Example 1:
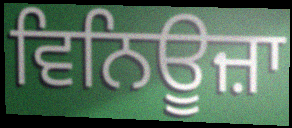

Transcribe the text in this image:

ਵਿਨਿਊਜ਼ਾ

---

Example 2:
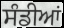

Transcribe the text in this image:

ਸੰਡੀਆਂ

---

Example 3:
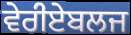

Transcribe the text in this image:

ਵੇਰੀਏਬਲਜ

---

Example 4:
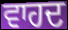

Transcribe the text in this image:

ਵਾਹਦ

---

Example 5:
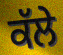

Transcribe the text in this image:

ਕੱਲੇ